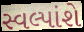
સ્વલ્પાંશે